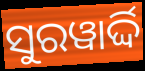
ସୁରୱାର୍ଦ୍ଦି